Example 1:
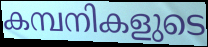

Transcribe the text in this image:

കമ്പനികളുടെ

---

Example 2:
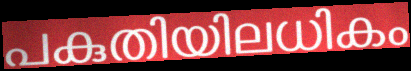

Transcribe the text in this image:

പകുതിയിലധികം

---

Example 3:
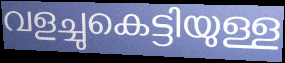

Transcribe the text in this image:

വളച്ചുകെട്ടിയുള്ള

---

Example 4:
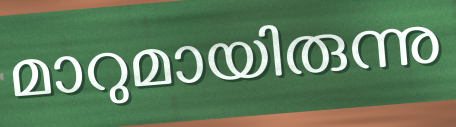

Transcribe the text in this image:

മാറുമായിരുന്നു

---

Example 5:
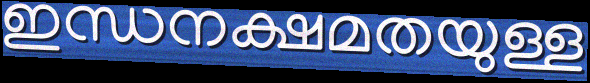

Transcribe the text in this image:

ഇന്ധനക്ഷമതയുള്ള